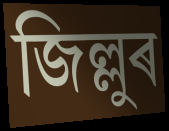
জিল্লুৰ